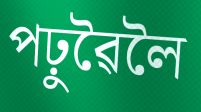
পঢ়ুৱৈলৈ